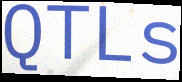
QTLs